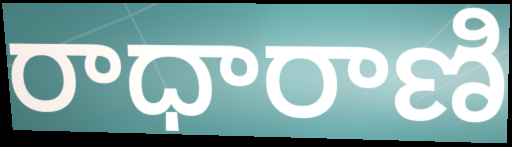
రాధారాణి